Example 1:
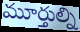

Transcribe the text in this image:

మూర్తుల్ని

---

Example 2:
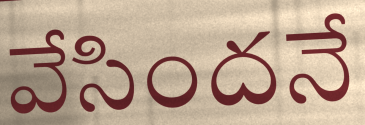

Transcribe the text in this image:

వేసిందనే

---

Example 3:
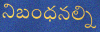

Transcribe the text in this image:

నిబంధనల్ని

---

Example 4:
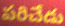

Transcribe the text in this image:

పరిచేడు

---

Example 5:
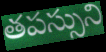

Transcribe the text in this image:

తపస్సుని